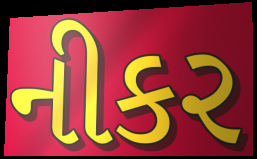
નીકર